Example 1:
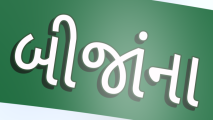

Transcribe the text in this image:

બીજાંના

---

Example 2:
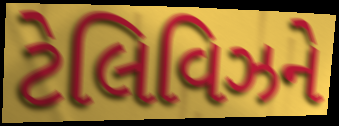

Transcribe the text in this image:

ટેલિવિઝને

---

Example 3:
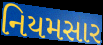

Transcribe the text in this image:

નિયમસાર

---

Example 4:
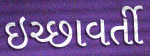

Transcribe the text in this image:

ઇચ્છાવર્તી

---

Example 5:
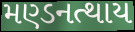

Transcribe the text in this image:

મણ્ડનત્થાય